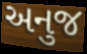
અનુજ